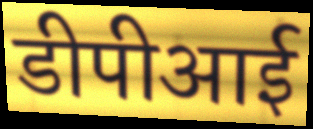
डीपीआई